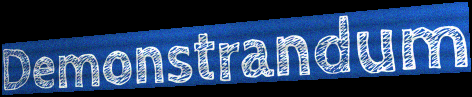
Demonstrandum